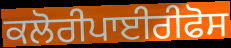
ਕਲੋਰੀਪਾਈਰੀਫੋਸ